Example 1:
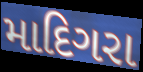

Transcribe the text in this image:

માદિગરા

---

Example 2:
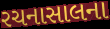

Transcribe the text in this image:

રચનાસાલના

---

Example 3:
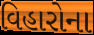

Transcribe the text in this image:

વિહારોના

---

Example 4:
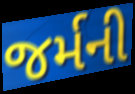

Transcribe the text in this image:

જર્મની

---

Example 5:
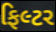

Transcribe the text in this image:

ફિલ્ટર